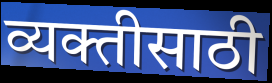
व्यक्तीसाठी